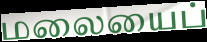
மலையைப்